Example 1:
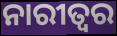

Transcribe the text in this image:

ନାରୀତ୍ଵର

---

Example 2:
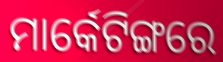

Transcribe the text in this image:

ମାର୍କେଟିଙ୍ଗରେ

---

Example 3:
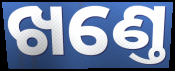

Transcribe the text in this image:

ଖଣ୍ତେ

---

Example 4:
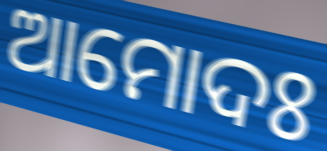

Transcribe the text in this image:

ଆମୋଦଃ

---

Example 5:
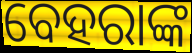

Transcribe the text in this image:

ବେହରାଙ୍କ